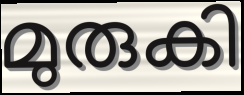
മുരുകി